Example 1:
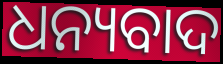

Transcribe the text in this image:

ଧନ୍ୟବାଦ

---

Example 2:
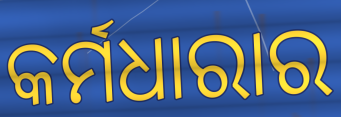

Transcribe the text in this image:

କର୍ମଧାରାର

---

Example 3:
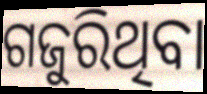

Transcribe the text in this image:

ଗଜୁରିଥିବା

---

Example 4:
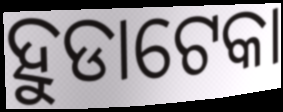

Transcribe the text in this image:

ହୁଡାଟେକା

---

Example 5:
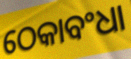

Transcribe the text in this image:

ଠେକାବଂଧା